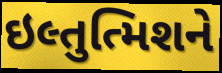
ઇલ્તુત્મિશને